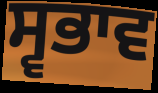
ਸ੍ਵਭਾਵ